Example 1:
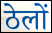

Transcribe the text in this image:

ठेलों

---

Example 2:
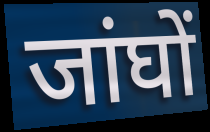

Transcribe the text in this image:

जांघों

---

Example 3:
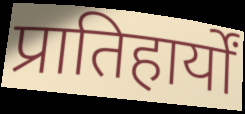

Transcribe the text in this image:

प्रातिहार्यों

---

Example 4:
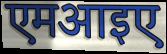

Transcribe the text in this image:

एमआइए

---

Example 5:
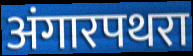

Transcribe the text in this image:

अंगारपथरा